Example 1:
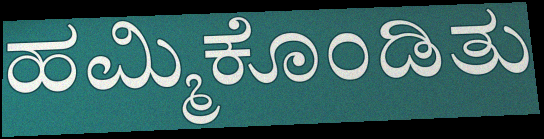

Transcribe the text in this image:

ಹಮ್ಮಿಕೊಂಡಿತು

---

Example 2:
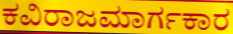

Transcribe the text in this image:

ಕವಿರಾಜಮಾರ್ಗಕಾರ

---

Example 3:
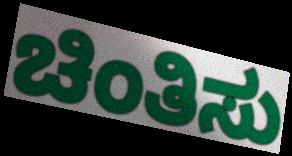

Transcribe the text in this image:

ಚಿಂತಿಸು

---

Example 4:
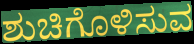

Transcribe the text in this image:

ಶುಚಿಗೊಳಿಸುವ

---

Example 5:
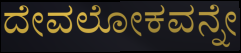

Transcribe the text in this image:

ದೇವಲೋಕವನ್ನೇ